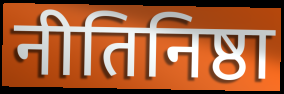
नीतिनिष्ठा